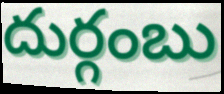
దుర్గంబు